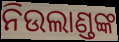
ନିଉଲାଣ୍ଡଙ୍କ